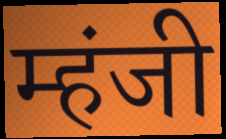
म्हंजी